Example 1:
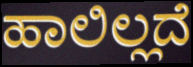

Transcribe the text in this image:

ಹಾಲಿಲ್ಲದೆ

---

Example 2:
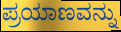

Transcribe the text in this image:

ಪ್ರಯಾಣವನ್ನು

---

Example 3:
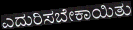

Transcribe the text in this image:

ಎದುರಿಸಬೇಕಾಯಿತು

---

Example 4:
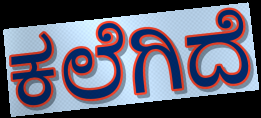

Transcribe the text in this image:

ಕಲೆಗಿದೆ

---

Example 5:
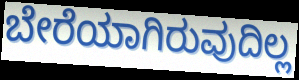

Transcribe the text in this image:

ಬೇರೆಯಾಗಿರುವುದಿಲ್ಲ